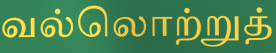
வல்லொற்றுத்